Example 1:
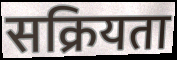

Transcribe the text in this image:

सक्रियता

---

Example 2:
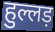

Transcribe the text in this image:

हुल्लड़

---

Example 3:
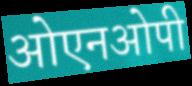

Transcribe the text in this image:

ओएनओपी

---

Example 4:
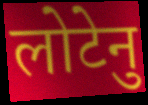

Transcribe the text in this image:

लोटेनु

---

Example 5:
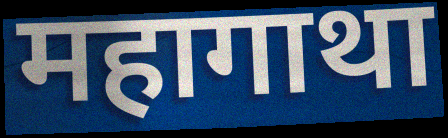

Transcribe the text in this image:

महागाथा